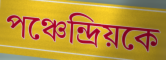
পঞ্চেন্দ্রিয়কে